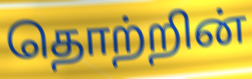
தொற்றின்